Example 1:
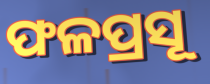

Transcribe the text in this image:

ଫଳପ୍ରସୂ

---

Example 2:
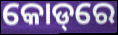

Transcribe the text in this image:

କୋଡ୍‌ରେ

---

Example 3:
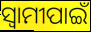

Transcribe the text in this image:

ସ୍ୱାମୀପାଇଁ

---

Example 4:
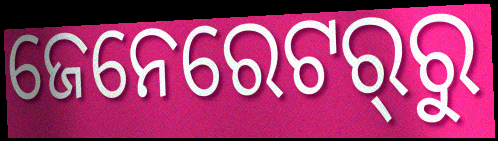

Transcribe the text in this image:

ଜେନେରେଟର୍‌ରୁ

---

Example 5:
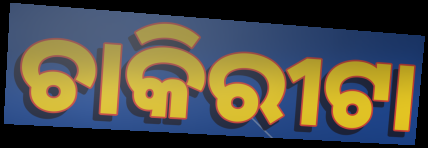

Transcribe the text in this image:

ଚାକିରୀଟା